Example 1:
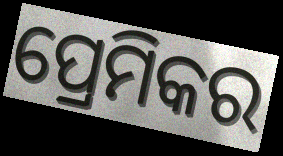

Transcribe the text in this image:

ପ୍ରେମିକର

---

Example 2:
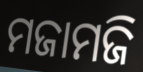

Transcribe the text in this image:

ମଜାମଜି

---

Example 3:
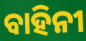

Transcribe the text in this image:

ବାହିନୀ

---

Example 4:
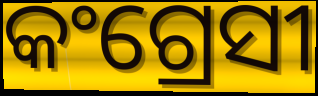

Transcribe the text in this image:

କଂଗ୍ରେସୀ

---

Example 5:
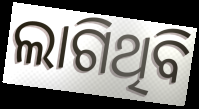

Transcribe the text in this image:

ଲାଗିଥିବି